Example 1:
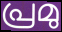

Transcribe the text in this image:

പ്രമു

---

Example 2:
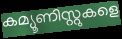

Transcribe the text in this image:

കമ്യൂണിസ്റ്റുകളെ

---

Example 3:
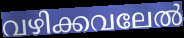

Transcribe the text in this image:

വഴിക്കവലേൽ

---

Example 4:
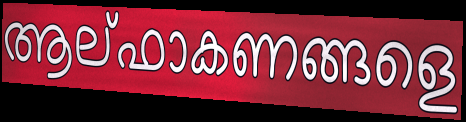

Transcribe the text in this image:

ആല്ഫാകണങ്ങളെ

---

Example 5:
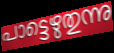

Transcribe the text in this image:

പാട്ടെഴുതുന്നു